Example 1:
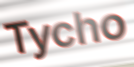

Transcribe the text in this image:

Tycho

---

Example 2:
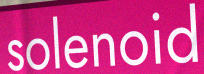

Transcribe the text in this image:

solenoid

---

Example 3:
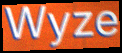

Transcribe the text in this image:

Wyze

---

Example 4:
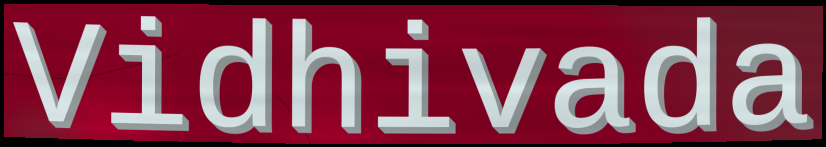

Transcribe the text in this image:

Vidhivada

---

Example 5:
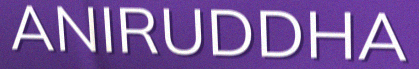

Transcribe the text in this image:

ANIRUDDHA